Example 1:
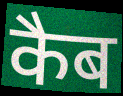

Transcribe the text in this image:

कैब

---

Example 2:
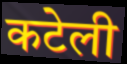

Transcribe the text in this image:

कटेली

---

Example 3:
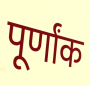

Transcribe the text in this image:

पूर्णांक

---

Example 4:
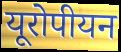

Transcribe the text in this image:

यूरोपीयन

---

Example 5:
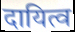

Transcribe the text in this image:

दायित्व